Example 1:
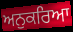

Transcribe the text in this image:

ਅਨੁਕਰਿਆ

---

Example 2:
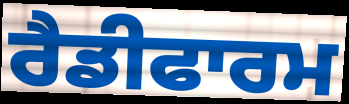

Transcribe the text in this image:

ਰੈਡੀਫਾਰਮ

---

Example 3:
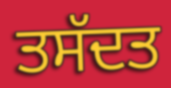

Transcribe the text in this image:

ਤਸੱਦਤ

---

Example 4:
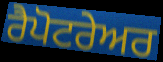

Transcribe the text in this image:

ਰੈਪੋਟਰੇਅਰ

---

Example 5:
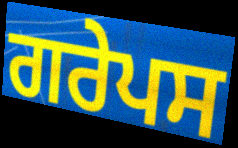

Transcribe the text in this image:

ਗਰੇਪਸ